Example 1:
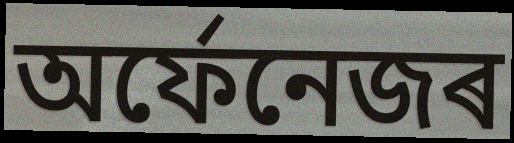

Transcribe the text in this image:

অৰ্ফেনেজৰ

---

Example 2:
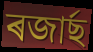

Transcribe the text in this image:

ৰজাৰ্ছ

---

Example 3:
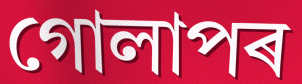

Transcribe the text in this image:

গোলাপৰ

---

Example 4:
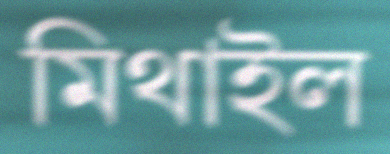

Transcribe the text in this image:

মিথাইল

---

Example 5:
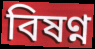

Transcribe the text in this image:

বিষণ্ন